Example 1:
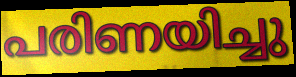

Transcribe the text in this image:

പരിണയിച്ചു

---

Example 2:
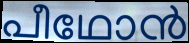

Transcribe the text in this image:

പീഥോൻ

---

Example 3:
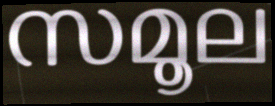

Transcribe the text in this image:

സമൂല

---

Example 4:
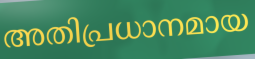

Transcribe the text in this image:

അതിപ്രധാനമായ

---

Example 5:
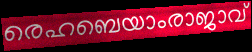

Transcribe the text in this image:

രെഹബെയാംരാജാവ്